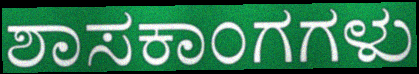
ಶಾಸಕಾಂಗಗಳು